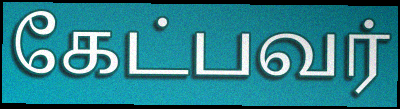
கேட்பவர்